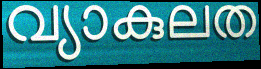
വ്യാകുലത